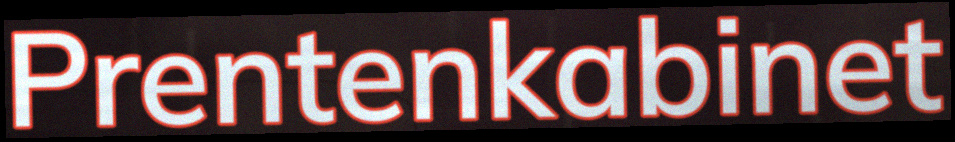
Prentenkabinet